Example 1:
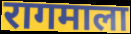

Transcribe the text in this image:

रागमाला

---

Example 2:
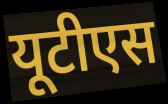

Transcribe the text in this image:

यूटीएस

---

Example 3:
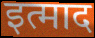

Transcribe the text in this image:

इत्माद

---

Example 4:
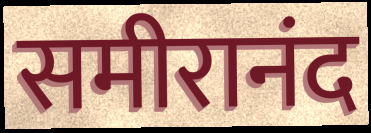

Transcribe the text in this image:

समीरानंद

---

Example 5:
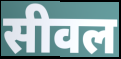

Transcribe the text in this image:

सीवल